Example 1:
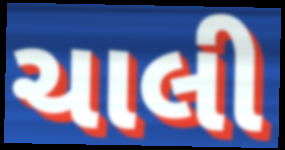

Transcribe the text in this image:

ચાલી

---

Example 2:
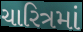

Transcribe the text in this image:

ચારિત્રમાં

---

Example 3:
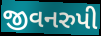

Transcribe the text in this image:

જીવનરુપી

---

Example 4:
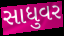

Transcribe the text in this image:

સાધુવર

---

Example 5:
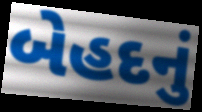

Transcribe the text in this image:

બેહદનું